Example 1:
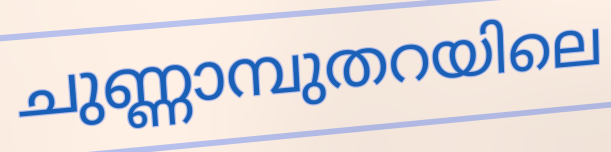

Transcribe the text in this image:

ചുണ്ണാമ്പുതറയിലെ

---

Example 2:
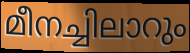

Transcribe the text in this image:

മീനച്ചിലാറും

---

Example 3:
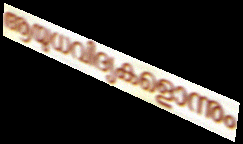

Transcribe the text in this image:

ആയുധവിദ്യകളൊന്നും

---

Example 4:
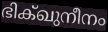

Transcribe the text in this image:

ഭിക്ഖുനീനം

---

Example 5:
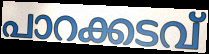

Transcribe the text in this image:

പാറക്കടവ്